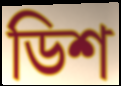
ডিশ